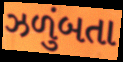
ઝળુંબતા